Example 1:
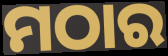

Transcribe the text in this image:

ମଠାର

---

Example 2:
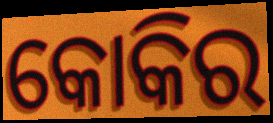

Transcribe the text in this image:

କୋକିର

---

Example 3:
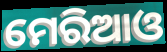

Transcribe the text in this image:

ମେରିଆଓ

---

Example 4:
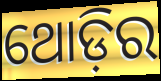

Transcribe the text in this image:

ଥୋଡ଼ିର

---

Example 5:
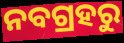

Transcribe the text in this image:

ନବଗ୍ରହରୁ